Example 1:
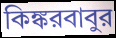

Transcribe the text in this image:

কিঙ্করবাবুর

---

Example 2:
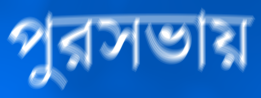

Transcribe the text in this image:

পুরসভায়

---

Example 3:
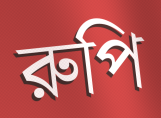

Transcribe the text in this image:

রুপি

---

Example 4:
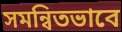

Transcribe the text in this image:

সমন্বিতভাবে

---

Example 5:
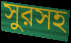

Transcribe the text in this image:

সুরসহ